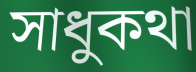
সাধুকথা